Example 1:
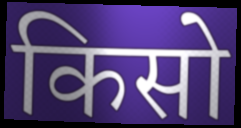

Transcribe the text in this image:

किसो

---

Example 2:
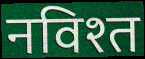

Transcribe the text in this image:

नविश्त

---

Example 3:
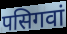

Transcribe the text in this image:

पसिगवां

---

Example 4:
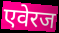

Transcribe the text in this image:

एवेरज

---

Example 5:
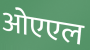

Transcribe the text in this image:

ओएएल